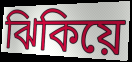
ঝিকিয়ে